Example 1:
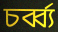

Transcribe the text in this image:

চর্ব্ব্য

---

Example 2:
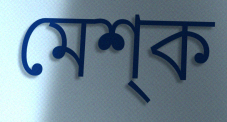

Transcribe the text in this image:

মেশ্ক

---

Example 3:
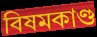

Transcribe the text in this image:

বিষমকাণ্ড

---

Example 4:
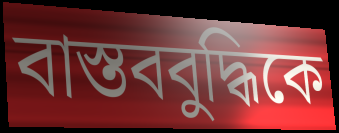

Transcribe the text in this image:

বাস্তববুদ্ধিকে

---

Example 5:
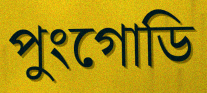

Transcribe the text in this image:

পুংগোডি